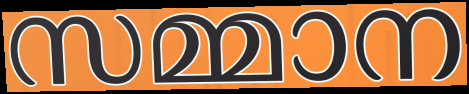
സമ്മാന